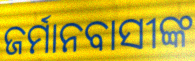
ଜର୍ମାନବାସୀଙ୍କ